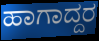
ಹಾಗಾದ್ದರ